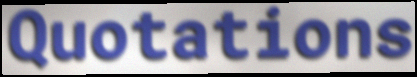
Quotations